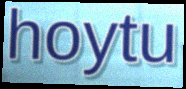
hoytu